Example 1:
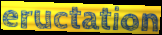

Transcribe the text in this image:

eructation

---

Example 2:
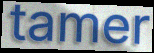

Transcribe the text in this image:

tamer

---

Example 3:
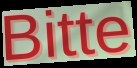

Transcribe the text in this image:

Bitte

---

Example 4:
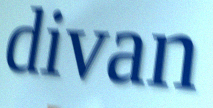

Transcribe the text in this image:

divan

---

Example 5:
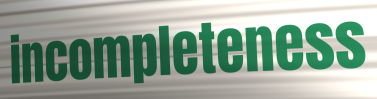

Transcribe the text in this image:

incompleteness